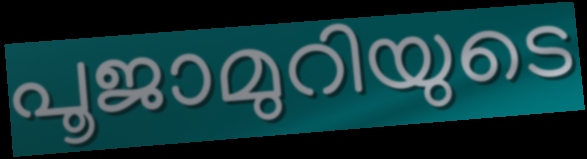
പൂജാമുറിയുടെ